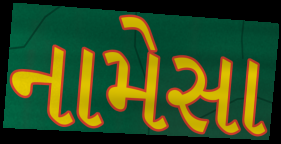
નામેસા